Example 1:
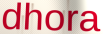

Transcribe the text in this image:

dhora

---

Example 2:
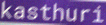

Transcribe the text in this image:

kasthuri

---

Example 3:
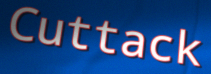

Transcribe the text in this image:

Cuttack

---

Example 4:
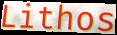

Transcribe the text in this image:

Lithos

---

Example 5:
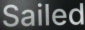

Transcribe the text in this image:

Sailed